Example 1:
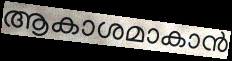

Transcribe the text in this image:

ആകാശമാകാൻ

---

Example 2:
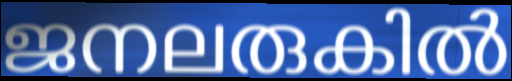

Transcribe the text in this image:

ജനലരുകിൽ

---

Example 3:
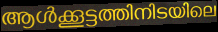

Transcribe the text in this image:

ആൾക്കൂട്ടത്തിനിടയിലെ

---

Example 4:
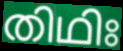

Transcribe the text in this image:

തിഥിഃ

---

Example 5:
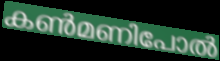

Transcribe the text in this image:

കൺമണിപോൽ